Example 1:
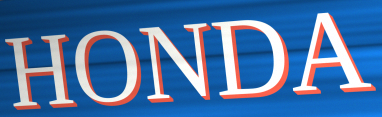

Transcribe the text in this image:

HONDA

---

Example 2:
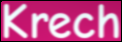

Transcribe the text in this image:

Krech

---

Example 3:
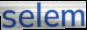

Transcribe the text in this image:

selem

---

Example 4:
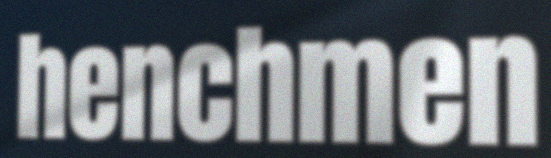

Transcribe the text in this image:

henchmen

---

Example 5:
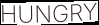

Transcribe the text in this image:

HUNGRY